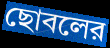
ছোবলের